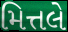
મિત્તલે